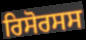
ਰਿਸੋਰਸਸ